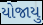
યોજાયુ